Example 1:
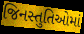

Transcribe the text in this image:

જિનસ્તુતિઓમાં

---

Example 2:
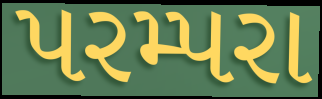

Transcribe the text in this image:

પરમ્પરા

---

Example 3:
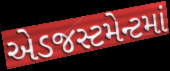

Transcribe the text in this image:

એડજસ્ટમેન્ટમાં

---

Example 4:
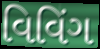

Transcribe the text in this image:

વિવિંગ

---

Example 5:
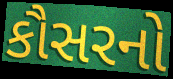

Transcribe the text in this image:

કૌસરનો